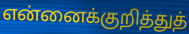
என்னைக்குறித்துத்